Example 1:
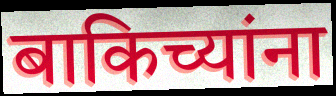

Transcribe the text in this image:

बाकिच्यांना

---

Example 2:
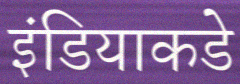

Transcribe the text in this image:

इंडियाकडे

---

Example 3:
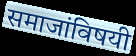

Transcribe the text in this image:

समाजांविषयी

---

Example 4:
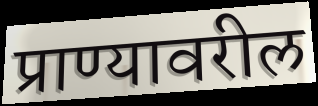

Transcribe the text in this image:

प्राण्यावरील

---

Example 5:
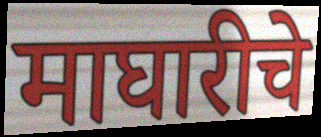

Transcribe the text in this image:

माघारीचे